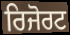
ਰਿਜੋਰਟ